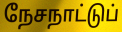
நேசநாட்டுப்